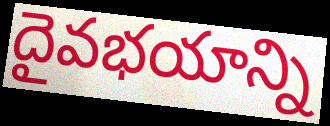
దైవభయాన్ని